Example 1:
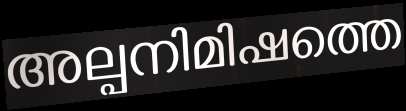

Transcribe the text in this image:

അല്പനിമിഷത്തെ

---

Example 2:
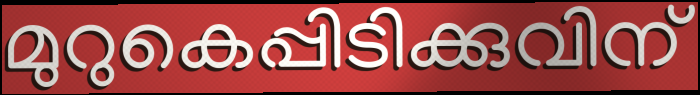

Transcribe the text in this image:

മുറുകെപ്പിടിക്കുവിന്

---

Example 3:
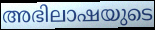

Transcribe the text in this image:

അഭിലാഷയുടെ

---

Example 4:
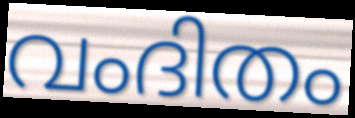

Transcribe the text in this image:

വംദിതം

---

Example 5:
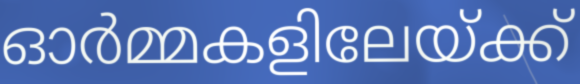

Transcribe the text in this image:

ഓർമ്മകളിലേയ്ക്ക്